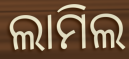
ଲାମିଲ